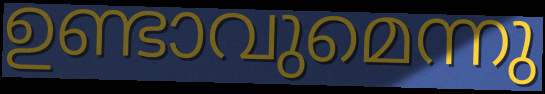
ഉണ്ടാവുമെന്നു